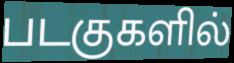
படகுகளில்